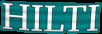
HILTI